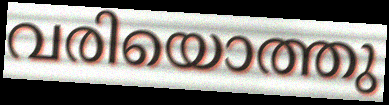
വരിയൊത്തു